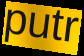
putr